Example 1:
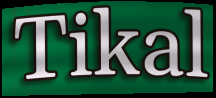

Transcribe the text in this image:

Tikal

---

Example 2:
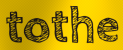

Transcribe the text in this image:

tothe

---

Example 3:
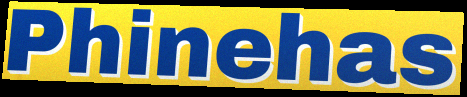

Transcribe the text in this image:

Phinehas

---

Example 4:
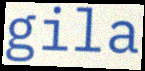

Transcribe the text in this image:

gila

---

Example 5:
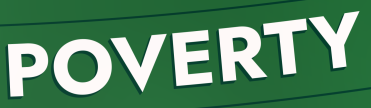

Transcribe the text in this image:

POVERTY